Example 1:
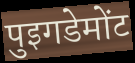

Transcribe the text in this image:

पुइगडेमोंट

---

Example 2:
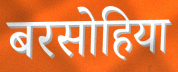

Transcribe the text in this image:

बरसोहिया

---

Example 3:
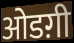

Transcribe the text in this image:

ओडग़ी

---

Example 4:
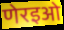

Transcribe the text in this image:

णेरइओ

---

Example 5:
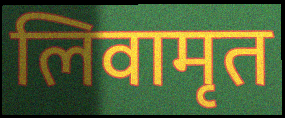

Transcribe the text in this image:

लिवामृत